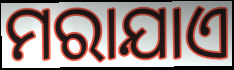
ମରାଯାଏ